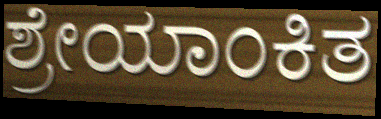
ಶ್ರೇಯಾಂಕಿತ